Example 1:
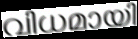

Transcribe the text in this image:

വിധമായി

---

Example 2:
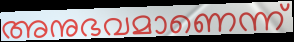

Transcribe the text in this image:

അനുഭവമാണെന്ന്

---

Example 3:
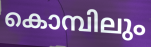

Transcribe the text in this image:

കൊമ്പിലും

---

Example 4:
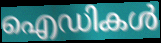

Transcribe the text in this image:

ഐഡികൾ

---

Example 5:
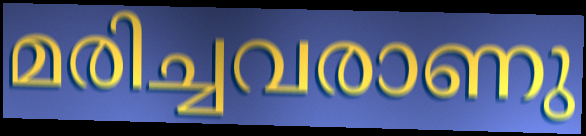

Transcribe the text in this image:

മരിച്ചവരാണു